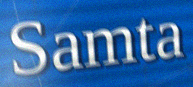
Samta